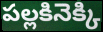
పల్లకినెక్కి